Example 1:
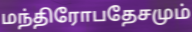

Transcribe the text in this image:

மந்திரோபதேசமும்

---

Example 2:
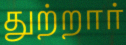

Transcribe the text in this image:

துற்றார்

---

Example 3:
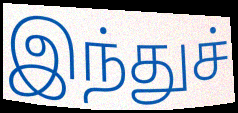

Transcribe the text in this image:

இந்துச்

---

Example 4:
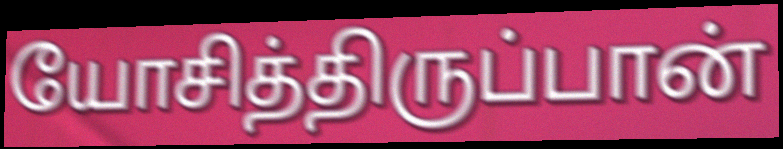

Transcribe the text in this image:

யோசித்திருப்பான்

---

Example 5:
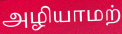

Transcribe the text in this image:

அழியாமற்